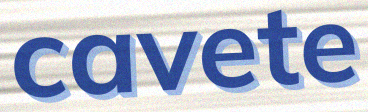
cavete